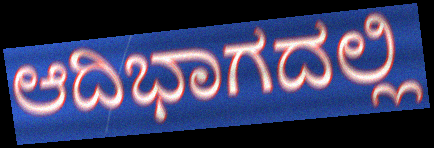
ಆದಿಭಾಗದಲ್ಲಿ